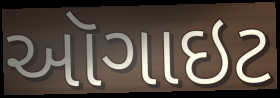
ઑગાઇટ